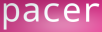
pacer